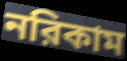
নরিকাম